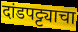
दांडपट्ट्याचा